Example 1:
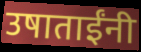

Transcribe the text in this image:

उषाताईंनी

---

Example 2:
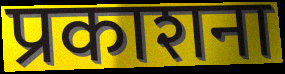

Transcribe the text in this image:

प्रकाशना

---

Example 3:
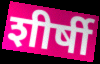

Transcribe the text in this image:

शीर्षी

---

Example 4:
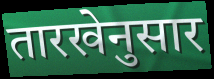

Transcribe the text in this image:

तारखेनुसार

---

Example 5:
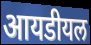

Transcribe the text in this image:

आयडीयल